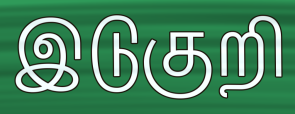
இடுகுறி